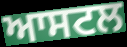
ਆਸਟਲ